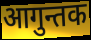
आगुन्तक